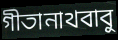
গীতানাথবাবু